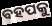
ବହପକୁ